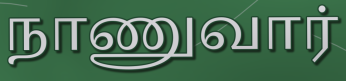
நாணுவார்